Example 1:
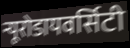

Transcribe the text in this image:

न्यूरोडायवर्सिटी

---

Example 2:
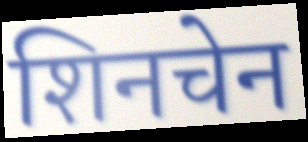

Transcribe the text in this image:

शिनचेन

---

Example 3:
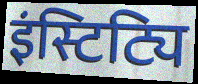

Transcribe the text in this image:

इंस्टिट्यि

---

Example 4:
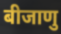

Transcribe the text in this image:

बीजाणु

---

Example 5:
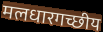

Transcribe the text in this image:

मलधारगच्छीय